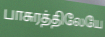
பாசுரத்திலேயே